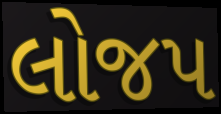
લોજપ